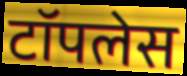
टॉपलेस